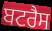
ਬਟਰੈਸ